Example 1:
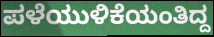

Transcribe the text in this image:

ಪಳೆಯುಳಿಕೆಯಂತಿದ್ದ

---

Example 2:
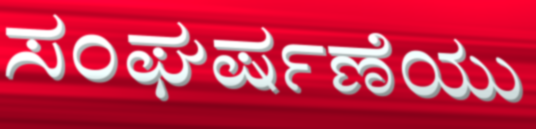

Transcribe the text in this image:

ಸಂಘರ್ಷಣೆಯು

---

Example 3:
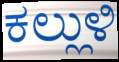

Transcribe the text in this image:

ಕಲ್ಲುಳಿ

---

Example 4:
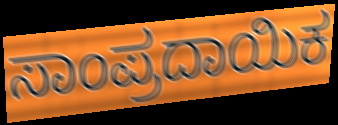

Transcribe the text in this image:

ಸಾಂಪ್ರದಾಯಿಕ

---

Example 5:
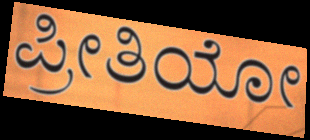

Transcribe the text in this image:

ಪ್ರೀತಿಯೋ